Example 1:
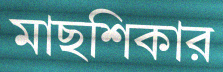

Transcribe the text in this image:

মাছশিকার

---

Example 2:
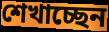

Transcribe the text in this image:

শেখাচ্ছেন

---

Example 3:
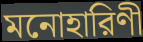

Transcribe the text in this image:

মনোহারিণী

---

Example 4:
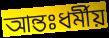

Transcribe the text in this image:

আন্তঃধর্মীয়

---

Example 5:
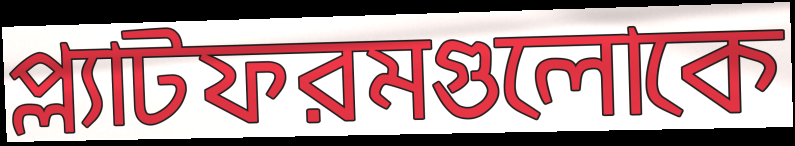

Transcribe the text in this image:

প্ল্যাটফরমগুলোকে